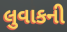
લુવાકની